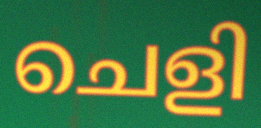
ചെളി